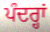
ਪੰਦਰ੍ਹਾਂ